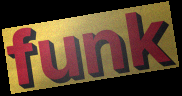
funk